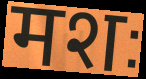
मशः